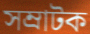
সম্ৰাটক